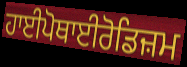
ਹਾਈਪੋਥਾਈਰੋਡਿਜ਼ਮ